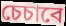
চেচাবে